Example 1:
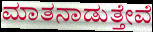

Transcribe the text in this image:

ಮಾತನಾಡುತ್ತೇವೆ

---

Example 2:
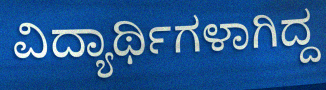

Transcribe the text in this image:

ವಿದ್ಯಾರ್ಥಿಗಳಾಗಿದ್ದ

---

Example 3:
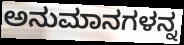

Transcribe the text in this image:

ಅನುಮಾನಗಳನ್ನ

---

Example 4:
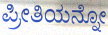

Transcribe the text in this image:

ಪ್ರೀತಿಯನ್ನೋ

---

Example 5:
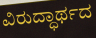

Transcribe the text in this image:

ವಿರುದ್ಧಾರ್ಥದ